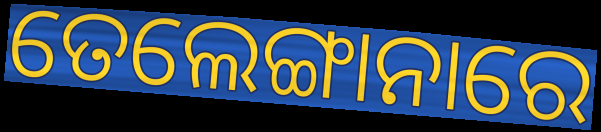
ତେଲେଙ୍ଗାନାରେ